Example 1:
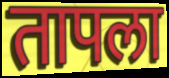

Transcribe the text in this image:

तापला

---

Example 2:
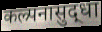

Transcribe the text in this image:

कल्पनासुद्धा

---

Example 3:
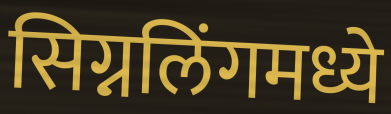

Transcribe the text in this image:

सिग्नलिंगमध्ये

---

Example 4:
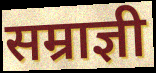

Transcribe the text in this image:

सम्राज्ञी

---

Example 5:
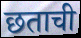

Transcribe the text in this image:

छताची